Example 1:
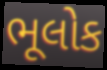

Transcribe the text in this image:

ભૂલોક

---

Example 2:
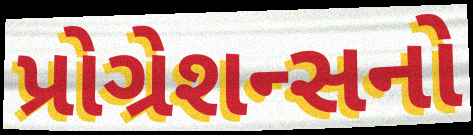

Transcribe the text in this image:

પ્રોગ્રેશન્સનો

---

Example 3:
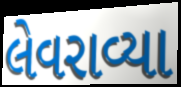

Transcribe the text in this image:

લેવરાવ્યા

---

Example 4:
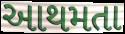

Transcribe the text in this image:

આથમતા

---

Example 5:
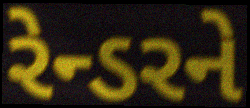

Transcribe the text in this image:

રેન્ડરને